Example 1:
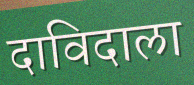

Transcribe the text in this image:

दाविदाला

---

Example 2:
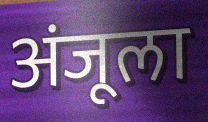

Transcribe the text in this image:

अंजूला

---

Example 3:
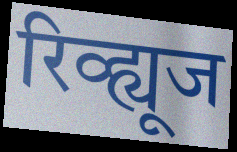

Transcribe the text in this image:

रिव्ह्यूज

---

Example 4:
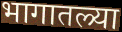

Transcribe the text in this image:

भागातल्या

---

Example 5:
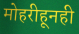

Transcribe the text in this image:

मोहरीहूनही